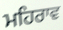
ਮਹਿਰਾਵ